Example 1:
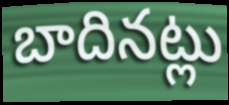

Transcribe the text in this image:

బాదినట్లు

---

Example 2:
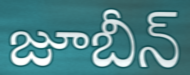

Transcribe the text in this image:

జూబీన్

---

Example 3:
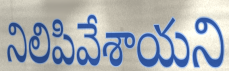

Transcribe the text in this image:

నిలిపివేశాయని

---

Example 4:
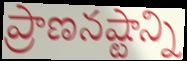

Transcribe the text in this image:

ప్రాణనష్టాన్ని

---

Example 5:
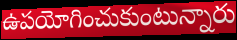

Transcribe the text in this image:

ఉపయోగించుకుంటున్నారు